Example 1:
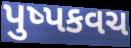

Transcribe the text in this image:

પુષ્પકવચ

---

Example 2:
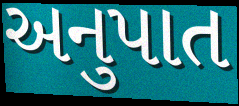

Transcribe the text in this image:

અનુપાત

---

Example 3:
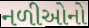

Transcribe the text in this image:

નળીઓનો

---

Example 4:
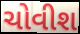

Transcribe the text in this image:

ચોવીશ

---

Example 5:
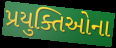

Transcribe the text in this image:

પ્રયુક્તિઓના